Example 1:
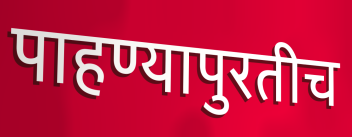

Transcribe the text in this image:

पाहण्यापुरतीच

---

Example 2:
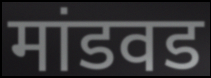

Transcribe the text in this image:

मांडवड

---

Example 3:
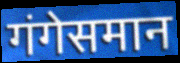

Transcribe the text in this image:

गंगेसमान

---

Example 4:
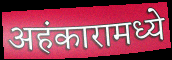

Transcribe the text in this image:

अहंकारामध्ये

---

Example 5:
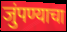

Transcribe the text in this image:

जुंपण्याचा